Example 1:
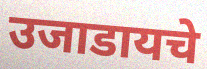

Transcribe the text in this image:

उजाडायचे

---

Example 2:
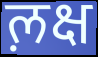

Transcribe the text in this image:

ल़क्ष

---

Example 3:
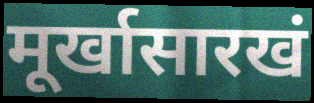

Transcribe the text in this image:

मूर्खासारखं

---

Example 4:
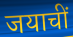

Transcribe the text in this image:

जयाचीं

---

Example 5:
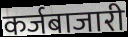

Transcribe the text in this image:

कर्जबाजारी